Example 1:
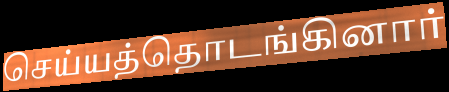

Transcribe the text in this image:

செய்யத்தொடங்கினார்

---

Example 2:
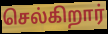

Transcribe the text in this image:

செல்கிறார்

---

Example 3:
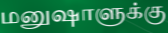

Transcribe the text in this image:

மனுஷாளுக்கு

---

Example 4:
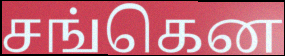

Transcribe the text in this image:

சங்கென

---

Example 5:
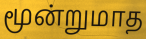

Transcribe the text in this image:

மூன்றுமாத